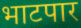
भाटपार